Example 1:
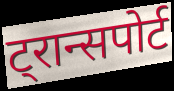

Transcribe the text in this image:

ट्रान्सपोर्ट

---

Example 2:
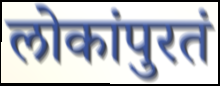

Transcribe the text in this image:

लोकांपुरतं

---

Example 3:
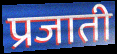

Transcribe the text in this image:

प्रजाती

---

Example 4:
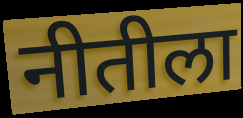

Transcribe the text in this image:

नीतीला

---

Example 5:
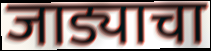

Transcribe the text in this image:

जाड्याचा